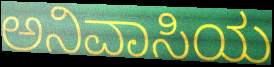
ಅನಿವಾಸಿಯ